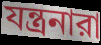
যন্ত্রনারা